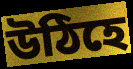
উঠিহে